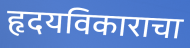
हृदयविकाराचा